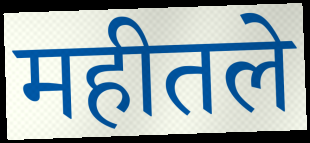
महीतले